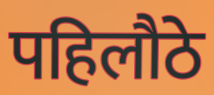
पहिलौठे